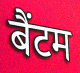
बैंटम